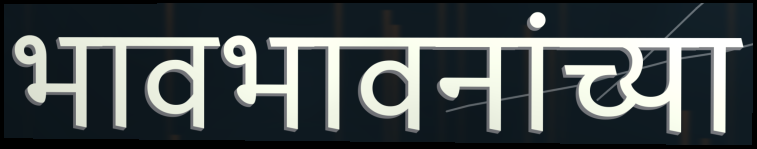
भावभावनांच्या